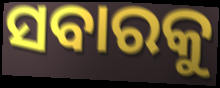
ସବାରକୁ